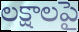
లక్షాలపై